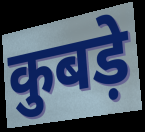
कुबड़े